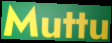
Muttu